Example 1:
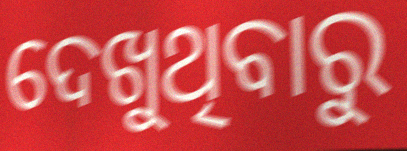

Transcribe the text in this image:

ଦେଖୁଥିବାରୁ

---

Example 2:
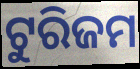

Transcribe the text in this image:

ଟୁରିଜମ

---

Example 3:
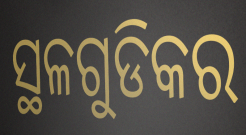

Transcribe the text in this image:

ସ୍ଥଳଗୁଡିକର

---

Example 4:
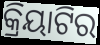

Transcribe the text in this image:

କ୍ରିୟାଟିର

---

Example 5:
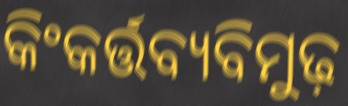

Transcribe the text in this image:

କିଂକର୍ତ୍ତବ୍ୟବିମୁଢ଼